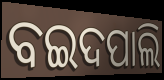
ବଇଦପାଲି